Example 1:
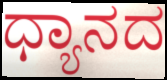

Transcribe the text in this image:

ಧ್ಯಾನದ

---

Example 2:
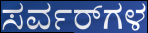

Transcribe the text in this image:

ಸರ್ವರ್‌ಗಳ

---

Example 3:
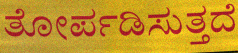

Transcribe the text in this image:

ತೋರ್ಪಡಿಸುತ್ತದೆ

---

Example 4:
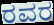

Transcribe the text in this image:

ರವರ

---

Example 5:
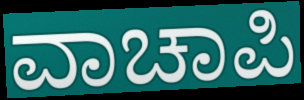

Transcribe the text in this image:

ವಾಚಾಪಿ